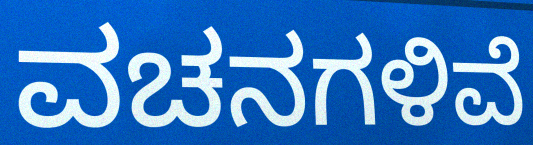
ವಚನಗಳಿವೆ